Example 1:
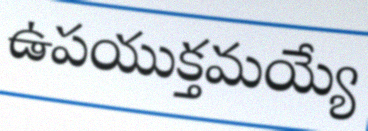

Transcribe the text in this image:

ఉపయుక్తమయ్యే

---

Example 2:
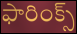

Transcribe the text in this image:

ఫారింక్స్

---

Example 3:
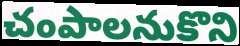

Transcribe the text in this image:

చంపాలనుకొని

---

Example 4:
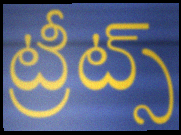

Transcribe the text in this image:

ట్రీట్స్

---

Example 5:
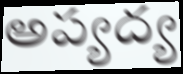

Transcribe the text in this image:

అప్యద్య